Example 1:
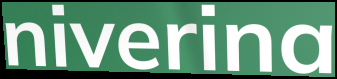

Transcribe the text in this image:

niverina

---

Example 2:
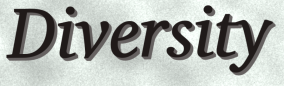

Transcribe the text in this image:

Diversity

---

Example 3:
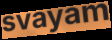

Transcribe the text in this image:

svayam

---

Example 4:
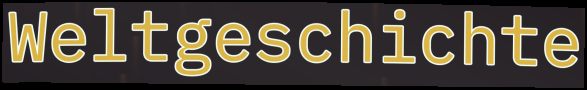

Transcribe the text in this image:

Weltgeschichte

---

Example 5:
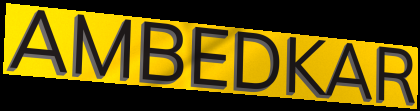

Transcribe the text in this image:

AMBEDKAR